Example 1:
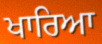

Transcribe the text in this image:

ਖਾਰਿਆ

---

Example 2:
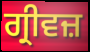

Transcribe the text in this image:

ਗ੍ਰੀਵਜ਼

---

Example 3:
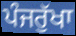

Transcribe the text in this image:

ਪੰਜਰੁੱਖਾ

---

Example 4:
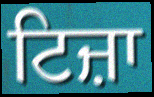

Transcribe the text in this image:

ਟਿਜ਼ਾ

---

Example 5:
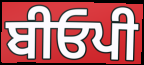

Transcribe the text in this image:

ਬੀਓਪੀ